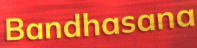
Bandhasana